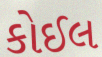
કોઈલ